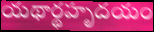
యథార్థహృదయం